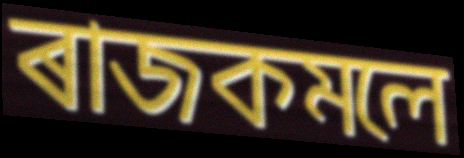
ৰাজকমলে